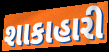
શાકાહારી